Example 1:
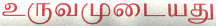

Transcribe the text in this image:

உருவமுடையது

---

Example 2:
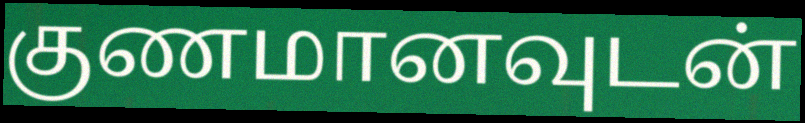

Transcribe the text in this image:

குணமானவுடன்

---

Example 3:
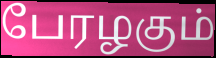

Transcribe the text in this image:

பேரழகும்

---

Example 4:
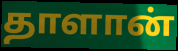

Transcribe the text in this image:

தாளான்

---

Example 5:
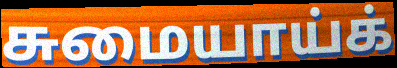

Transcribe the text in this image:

சுமையாய்க்